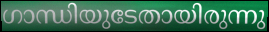
ഗാന്ധിയുടേതായിരുന്നു